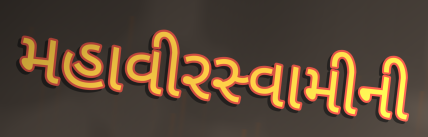
મહાવીરસ્વામીની